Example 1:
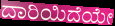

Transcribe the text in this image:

ದಾರಿಯಿದೆಯೇ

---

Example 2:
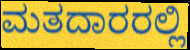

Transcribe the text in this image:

ಮತದಾರರಲ್ಲಿ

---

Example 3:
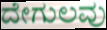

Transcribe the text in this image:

ದೇಗುಲವು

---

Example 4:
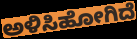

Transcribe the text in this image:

ಅಳಿಸಿಹೋಗಿದೆ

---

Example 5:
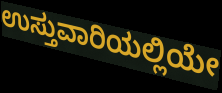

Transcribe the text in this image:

ಉಸ್ತುವಾರಿಯಲ್ಲಿಯೇ